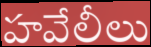
హవేలీలు